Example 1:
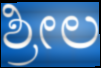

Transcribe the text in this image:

ಶ್ರೀಲ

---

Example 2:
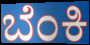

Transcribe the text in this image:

ಬೆಂಕಿ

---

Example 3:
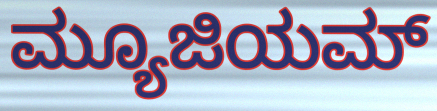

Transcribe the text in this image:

ಮ್ಯೂಜಿಯಮ್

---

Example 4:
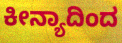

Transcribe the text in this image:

ಕೀನ್ಯಾದಿಂದ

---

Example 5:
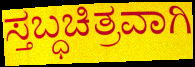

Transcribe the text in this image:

ಸ್ತಬ್ಧಚಿತ್ರವಾಗಿ